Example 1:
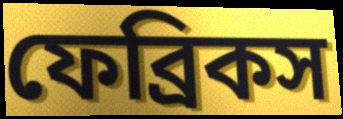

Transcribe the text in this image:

ফেব্রিকস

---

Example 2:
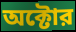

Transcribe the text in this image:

অক্টোর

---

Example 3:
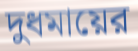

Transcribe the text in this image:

দুধমায়ের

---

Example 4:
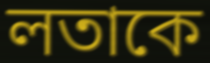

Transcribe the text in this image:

লতাকে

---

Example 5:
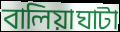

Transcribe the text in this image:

বালিয়াঘাটা